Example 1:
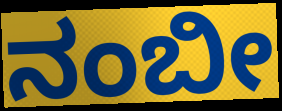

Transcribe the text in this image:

ನಂಬೀ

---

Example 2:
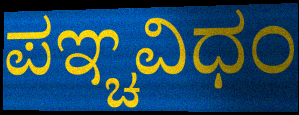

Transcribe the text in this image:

ಪಞ್ಚವಿಧಂ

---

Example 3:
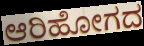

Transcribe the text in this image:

ಆರಿಹೋಗದ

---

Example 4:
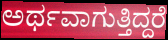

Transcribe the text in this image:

ಅರ್ಥವಾಗುತ್ತಿದ್ದರೆ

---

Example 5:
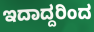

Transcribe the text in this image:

ಇದಾದ್ದರಿಂದ